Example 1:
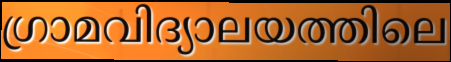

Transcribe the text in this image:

ഗ്രാമവിദ്യാലയത്തിലെ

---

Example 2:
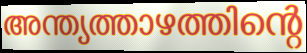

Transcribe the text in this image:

അന്ത്യത്താഴത്തിന്റെ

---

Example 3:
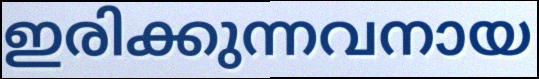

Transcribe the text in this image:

ഇരിക്കുന്നവനായ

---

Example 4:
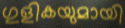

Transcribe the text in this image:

ഗുളികയുമായി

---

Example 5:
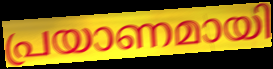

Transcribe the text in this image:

പ്രയാണമായി